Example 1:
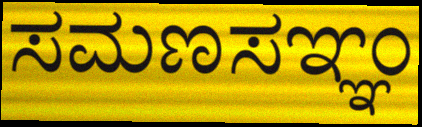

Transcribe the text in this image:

ಸಮಣಸಞ್ಞಂ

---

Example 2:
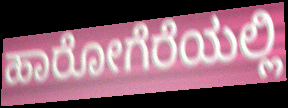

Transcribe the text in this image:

ಹಾರೋಗೆರೆಯಲ್ಲಿ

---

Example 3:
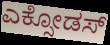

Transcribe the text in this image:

ಎಕ್ಸೋಡಸ್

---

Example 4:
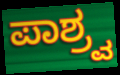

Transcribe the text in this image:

ಪಾಶ್ರ್ವ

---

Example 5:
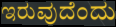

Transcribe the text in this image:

ಇರುವುದೆಂದು